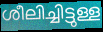
ശീലിച്ചിട്ടുള്ള